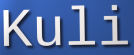
Kuli